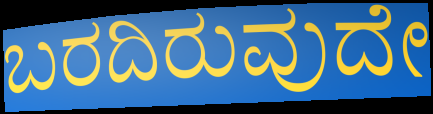
ಬರದಿರುವುದೇ